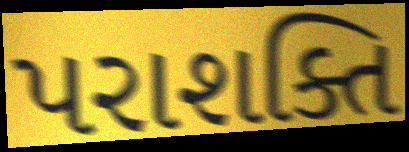
પરાશક્તિ